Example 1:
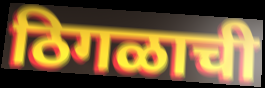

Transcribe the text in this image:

ठिगळाची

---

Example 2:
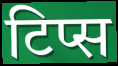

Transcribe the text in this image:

टिप्स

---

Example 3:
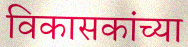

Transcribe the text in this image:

विकासकांच्या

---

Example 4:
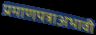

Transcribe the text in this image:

प्रमाणपत्राअभावी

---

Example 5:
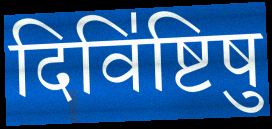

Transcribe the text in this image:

दिवि॑ष्टिषु